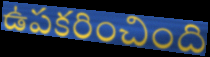
ఉపకరించింది